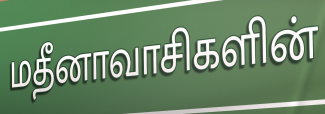
மதீனாவாசிகளின்